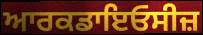
ਆਰਕਡਾਇਓਸੀਜ਼